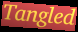
Tangled